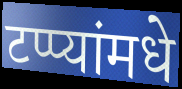
टप्प्यांमधे